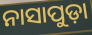
ନାସାପୁଡ଼ା